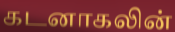
கடனாகலின்